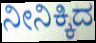
ನೀನಿಕ್ಕಿದ